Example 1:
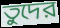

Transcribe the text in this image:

তুদের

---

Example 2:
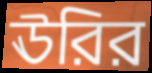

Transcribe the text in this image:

ঊরির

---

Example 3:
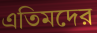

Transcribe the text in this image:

এতিমদের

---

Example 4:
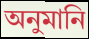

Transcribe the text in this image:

অনুমানি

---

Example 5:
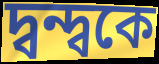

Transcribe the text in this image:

দ্বন্দ্বকে